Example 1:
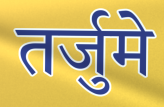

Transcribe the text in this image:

तर्जुमे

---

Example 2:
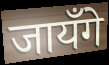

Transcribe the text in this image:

जायँगे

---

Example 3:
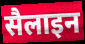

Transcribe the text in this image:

सैलाइन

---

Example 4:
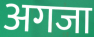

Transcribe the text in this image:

अगजा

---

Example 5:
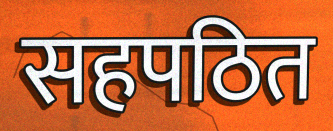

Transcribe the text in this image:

सहपठित